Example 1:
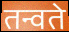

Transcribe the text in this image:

तन्वते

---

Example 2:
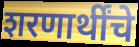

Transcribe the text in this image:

शरणार्थींचे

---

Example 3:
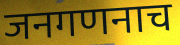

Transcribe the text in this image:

जनगणनाच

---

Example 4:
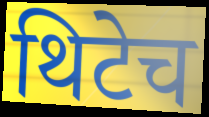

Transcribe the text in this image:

थिटेच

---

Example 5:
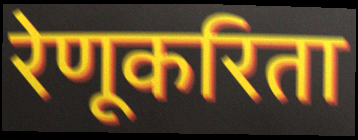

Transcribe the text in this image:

रेणूकरिता